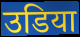
उडिया